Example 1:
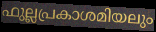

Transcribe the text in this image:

ഫുല്ലപ്രകാശമിയലും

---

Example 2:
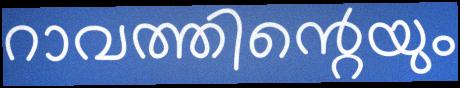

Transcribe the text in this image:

റാവത്തിന്റെയും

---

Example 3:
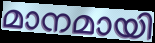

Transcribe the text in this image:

മാനമായി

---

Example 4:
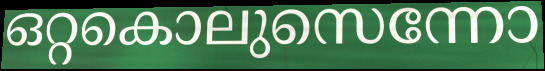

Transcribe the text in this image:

ഒറ്റകൊലുസെന്നോ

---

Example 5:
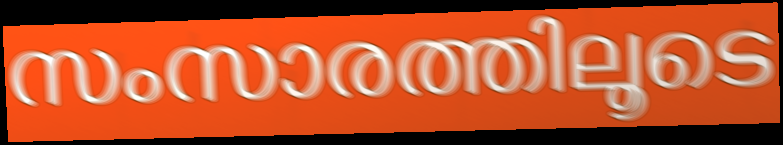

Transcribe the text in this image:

സംസാരത്തിലൂടെ